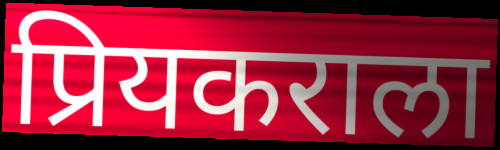
प्रियकराला